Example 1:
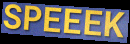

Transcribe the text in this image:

SPEEEK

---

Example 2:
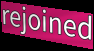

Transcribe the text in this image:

rejoined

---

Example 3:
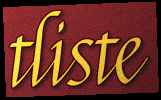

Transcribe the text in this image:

tliste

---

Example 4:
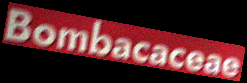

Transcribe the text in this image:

Bombacaceae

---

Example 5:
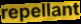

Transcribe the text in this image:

repellant